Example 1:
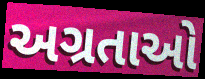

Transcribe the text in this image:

અગ્રતાઓ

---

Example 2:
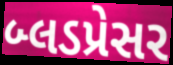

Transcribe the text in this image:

બ્લડપ્રેસર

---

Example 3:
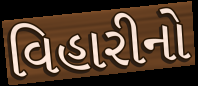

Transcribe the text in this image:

વિહારીનો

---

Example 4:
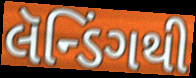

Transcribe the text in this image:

લૅન્ડિંગથી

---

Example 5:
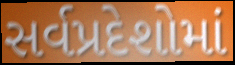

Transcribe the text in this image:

સર્વપ્રદેશોમાં